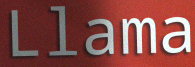
Llama